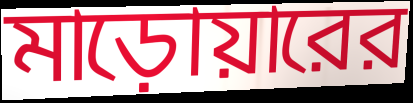
মাড়োয়ারের